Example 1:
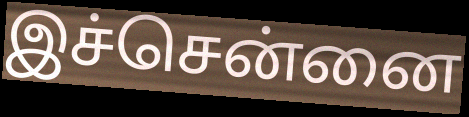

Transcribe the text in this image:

இச்சென்னை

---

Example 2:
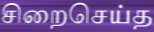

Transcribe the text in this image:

சிறைசெய்த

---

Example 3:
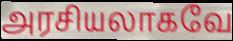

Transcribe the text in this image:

அரசியலாகவே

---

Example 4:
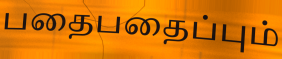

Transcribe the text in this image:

பதைபதைப்பும்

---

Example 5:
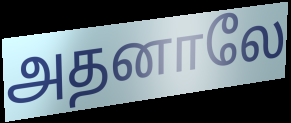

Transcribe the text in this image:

அதனாலே